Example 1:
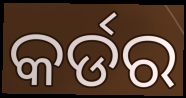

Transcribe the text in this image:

କର୍ଡର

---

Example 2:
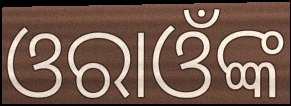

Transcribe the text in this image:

ଓରାଓଁଙ୍କ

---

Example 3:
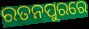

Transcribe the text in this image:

ରତନପୁରରେ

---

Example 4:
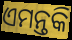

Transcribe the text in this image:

ଏମନ୍ତକି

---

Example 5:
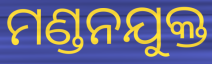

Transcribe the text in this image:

ମଣ୍ଡନଯୁକ୍ତ